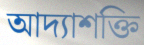
আদ্যাশক্তি